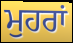
ਮੁਹਰਾਂ